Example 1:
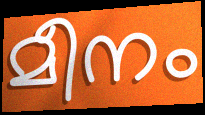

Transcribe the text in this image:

മീനം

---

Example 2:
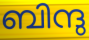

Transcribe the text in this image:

ബിന്ദു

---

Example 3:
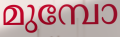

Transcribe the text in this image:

മുമ്പോ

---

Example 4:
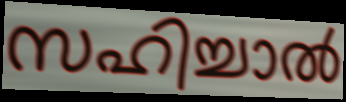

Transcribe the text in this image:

സഹിച്ചാൽ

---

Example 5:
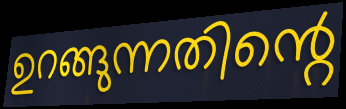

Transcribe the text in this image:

ഉറങ്ങുന്നതിന്റെ